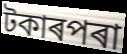
টকাৰপৰা